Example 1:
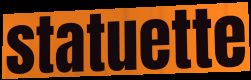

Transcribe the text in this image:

statuette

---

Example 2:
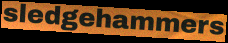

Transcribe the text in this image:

sledgehammers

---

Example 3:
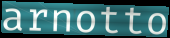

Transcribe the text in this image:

arnotto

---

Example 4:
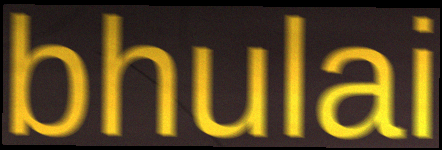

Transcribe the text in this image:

bhulai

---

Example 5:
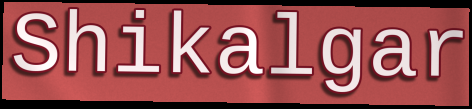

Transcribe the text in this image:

Shikalgar